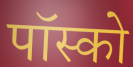
पॉस्को